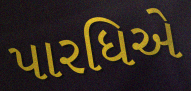
પારધિએ